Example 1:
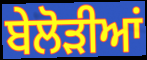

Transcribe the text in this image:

ਬੇਲੋੜੀਆਂ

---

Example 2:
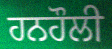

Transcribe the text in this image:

ਹਨਹੌਲੀ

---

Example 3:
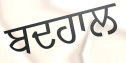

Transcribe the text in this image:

ਬਦਹਾਲ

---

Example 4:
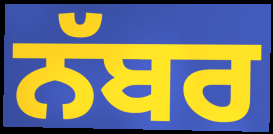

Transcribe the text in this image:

ਨੱਬਰ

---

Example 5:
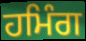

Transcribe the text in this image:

ਹਮਿੰਗ